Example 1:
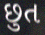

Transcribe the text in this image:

છુત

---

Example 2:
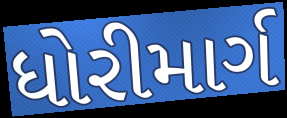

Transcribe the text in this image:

ધોરીમાર્ગ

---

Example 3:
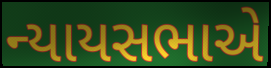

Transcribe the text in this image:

ન્યાયસભાએ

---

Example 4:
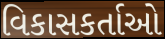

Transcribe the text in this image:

વિકાસકર્તાઓ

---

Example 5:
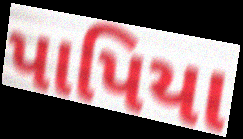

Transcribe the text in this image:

પાપિયા